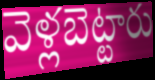
వెళ్లబెట్టారు